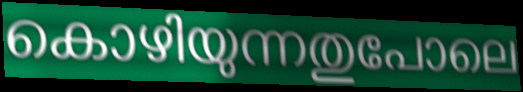
കൊഴിയുന്നതുപോലെ